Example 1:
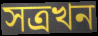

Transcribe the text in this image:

সত্ৰখন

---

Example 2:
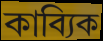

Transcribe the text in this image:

কাব্যিক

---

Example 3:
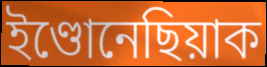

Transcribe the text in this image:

ইণ্ডোনেছিয়াক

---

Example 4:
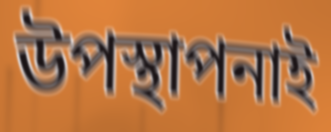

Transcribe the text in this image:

উপস্থাপনাই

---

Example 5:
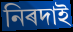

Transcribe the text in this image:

নিৰদাই